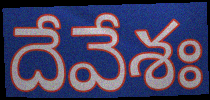
దేవేశః